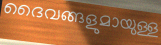
ദൈവങ്ങളുമായുള്ള